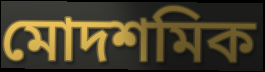
মোদশমিক